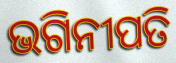
ଭଗିନୀପତି